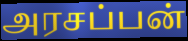
அரசப்பன்